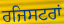
ਰਜਿਸਟਰਾਂ